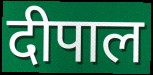
दीपाल